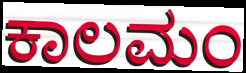
ಕಾಲಮಂ